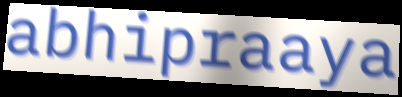
abhipraaya